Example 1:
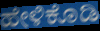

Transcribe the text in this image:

ಹೇಳಿಕೊಡಿ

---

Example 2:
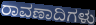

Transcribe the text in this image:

ರಾವಣಾದಿಗಳು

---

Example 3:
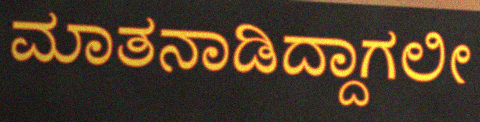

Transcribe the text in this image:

ಮಾತನಾಡಿದ್ದಾಗಲೀ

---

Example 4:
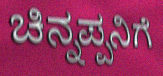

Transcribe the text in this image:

ಚಿನ್ನಪ್ಪನಿಗೆ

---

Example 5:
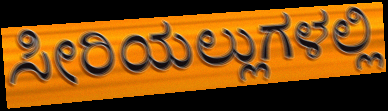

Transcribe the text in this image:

ಸೀರಿಯಲ್ಲುಗಳಲ್ಲಿ